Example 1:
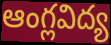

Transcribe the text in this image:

ఆంగ్లవిద్య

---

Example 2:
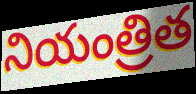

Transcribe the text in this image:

నియంత్రిత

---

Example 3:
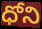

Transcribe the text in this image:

ధోని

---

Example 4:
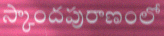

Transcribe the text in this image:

స్కాందపురాణంలో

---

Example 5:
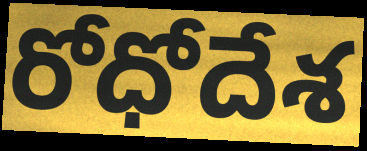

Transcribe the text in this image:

రోధోదేశ